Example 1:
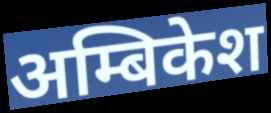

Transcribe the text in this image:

अम्बिकेश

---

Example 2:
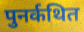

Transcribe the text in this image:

पुनर्कथित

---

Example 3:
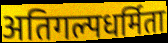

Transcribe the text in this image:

अतिगल्पधर्मिता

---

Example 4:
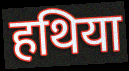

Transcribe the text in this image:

हथिया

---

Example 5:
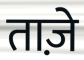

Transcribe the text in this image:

ताज़े